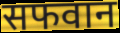
सफवान